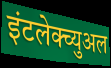
इंटलेक्च्युअल